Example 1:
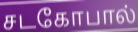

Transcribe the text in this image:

சடகோபால்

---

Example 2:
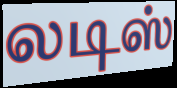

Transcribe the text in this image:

லடிஸ்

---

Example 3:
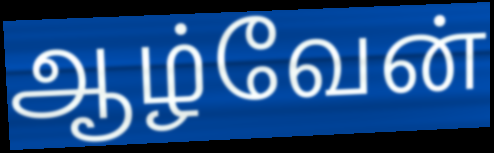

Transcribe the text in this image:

ஆழ்வேன்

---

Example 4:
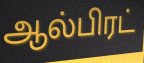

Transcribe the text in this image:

ஆல்பிரட்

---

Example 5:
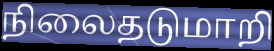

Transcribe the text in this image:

நிலைதடுமாறி